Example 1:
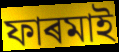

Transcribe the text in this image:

ফাৰমাই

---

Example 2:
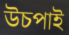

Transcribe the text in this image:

উচপাই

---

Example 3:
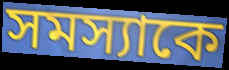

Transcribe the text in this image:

সমস্যাকে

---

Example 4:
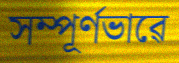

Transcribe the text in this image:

সম্পূৰ্ণভাৱে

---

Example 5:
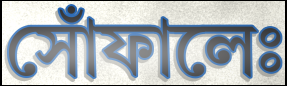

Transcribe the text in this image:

সোঁফালেঃ